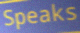
Speaks